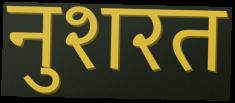
नुशरत